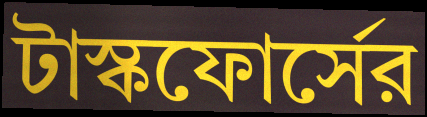
টাস্কফোর্সের